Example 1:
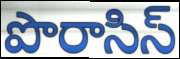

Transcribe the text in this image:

పొరాసిస్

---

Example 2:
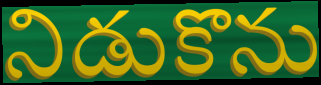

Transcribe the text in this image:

నిడుకొను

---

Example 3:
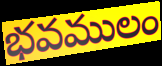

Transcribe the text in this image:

భవములం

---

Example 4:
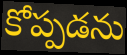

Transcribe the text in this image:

కోప్పడను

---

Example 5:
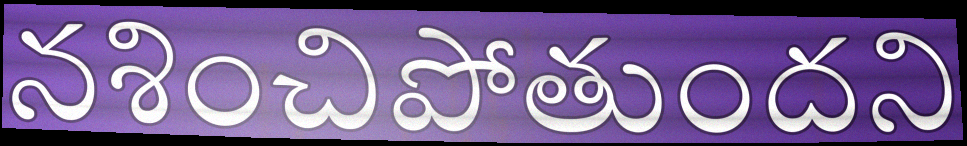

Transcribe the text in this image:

నశించిపోతుందని